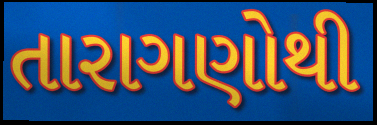
તારાગણોથી